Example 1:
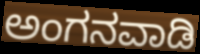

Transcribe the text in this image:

ಅಂಗನವಾಡಿ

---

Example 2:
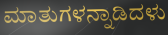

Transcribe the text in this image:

ಮಾತುಗಳನ್ನಾಡಿದಳು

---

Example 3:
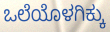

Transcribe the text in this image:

ಒಲೆಯೊಳಗಿಕ್ಕು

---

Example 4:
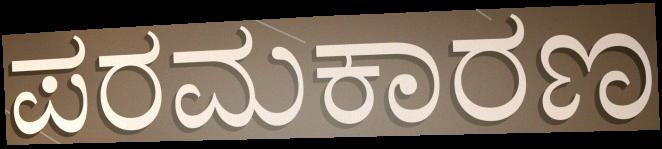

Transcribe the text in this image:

ಪರಮಕಾರಣ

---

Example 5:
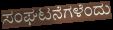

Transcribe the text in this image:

ಸಂಘಟನೆಗಳೆಂದು